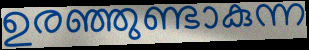
ഉരഞ്ഞുണ്ടാകുന്ന